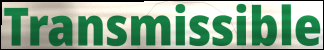
Transmissible